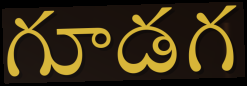
గూడగ